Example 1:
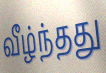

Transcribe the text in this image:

வீழ்ந்தது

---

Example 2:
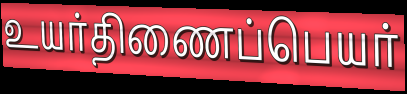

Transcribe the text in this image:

உயர்திணைப்பெயர்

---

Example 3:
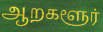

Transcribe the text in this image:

ஆறகளூர்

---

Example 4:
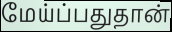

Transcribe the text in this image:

மேய்ப்பதுதான்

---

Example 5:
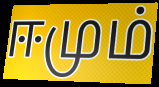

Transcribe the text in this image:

ஈமும்